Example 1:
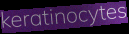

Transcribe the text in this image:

keratinocytes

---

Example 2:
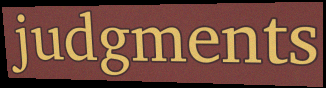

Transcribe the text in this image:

judgments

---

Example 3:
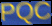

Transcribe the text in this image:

PQC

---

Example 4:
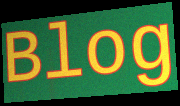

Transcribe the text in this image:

Blog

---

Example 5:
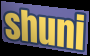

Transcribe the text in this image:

shuni